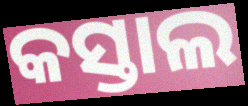
କସ୍ତାଲ